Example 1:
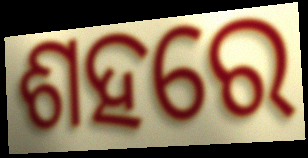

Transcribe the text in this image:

ଶହରେ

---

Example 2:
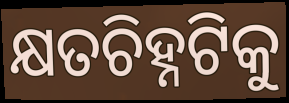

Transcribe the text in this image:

କ୍ଷତଚିହ୍ନଟିକୁ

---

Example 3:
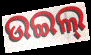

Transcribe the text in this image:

ଉଇଲ୍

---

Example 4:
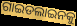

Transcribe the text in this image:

ଗାଇଡଲାଇନକୁ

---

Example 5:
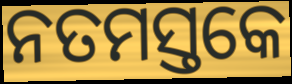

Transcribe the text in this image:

ନତମସ୍ତକେ